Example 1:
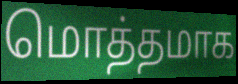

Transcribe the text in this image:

மொத்தமாக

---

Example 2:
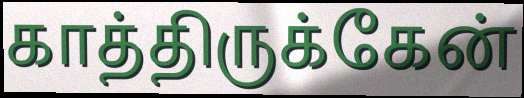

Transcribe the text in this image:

காத்திருக்கேன்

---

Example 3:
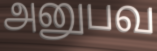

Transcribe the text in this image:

அனுபவ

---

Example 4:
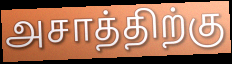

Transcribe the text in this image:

அசாத்திற்கு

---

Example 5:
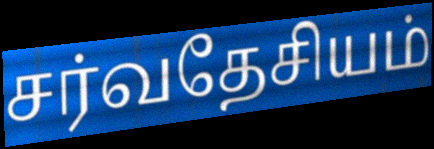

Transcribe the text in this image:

சர்வதேசியம்